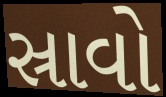
સ્રાવો